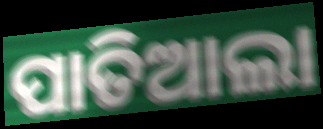
ପାତିଆଲା